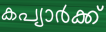
കപ്യാർക്ക്